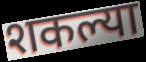
शकल्या